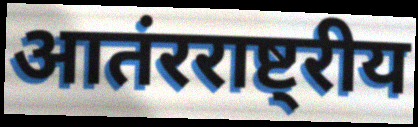
आतंरराष्ट्रीय